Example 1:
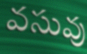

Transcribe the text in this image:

వసువు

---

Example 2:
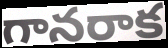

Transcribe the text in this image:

గానరాక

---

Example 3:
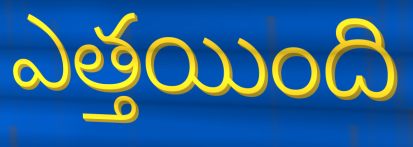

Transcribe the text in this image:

ఎత్తయింది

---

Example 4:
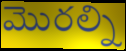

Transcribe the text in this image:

మొరల్ని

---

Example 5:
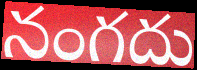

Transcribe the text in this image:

నంగదు